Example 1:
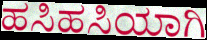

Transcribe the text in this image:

ಹಸಿಹಸಿಯಾಗಿ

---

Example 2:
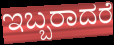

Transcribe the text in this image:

ಇಬ್ಬರಾದರೆ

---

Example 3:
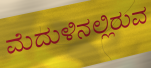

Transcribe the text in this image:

ಮೆದುಳಿನಲ್ಲಿರುವ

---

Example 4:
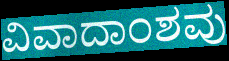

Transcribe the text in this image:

ವಿವಾದಾಂಶವು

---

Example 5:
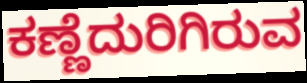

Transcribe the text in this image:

ಕಣ್ಣೆದುರಿಗಿರುವ